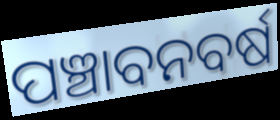
ପଞ୍ଚାବନବର୍ଷ